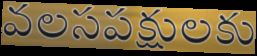
వలసపక్షులకు